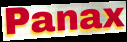
Panax